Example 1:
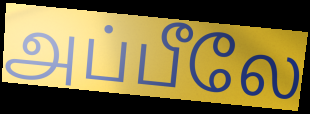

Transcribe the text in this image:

அப்பீலே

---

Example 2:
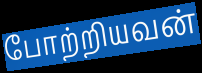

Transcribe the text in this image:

போற்றியவன்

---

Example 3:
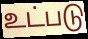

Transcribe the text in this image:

உட்படு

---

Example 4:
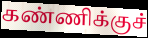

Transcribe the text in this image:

கண்ணிக்குச்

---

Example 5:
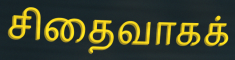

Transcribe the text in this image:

சிதைவாகக்